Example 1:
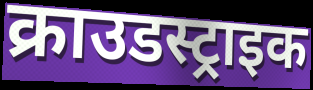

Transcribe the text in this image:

क्राउडस्ट्राइक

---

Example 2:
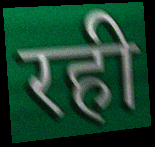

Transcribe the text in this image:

रही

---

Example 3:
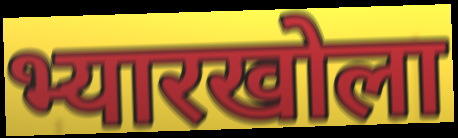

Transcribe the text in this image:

भ्यारखोला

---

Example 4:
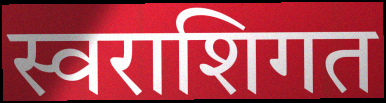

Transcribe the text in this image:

स्वराशिगत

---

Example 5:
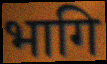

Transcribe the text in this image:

भागि